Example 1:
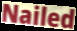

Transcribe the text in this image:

Nailed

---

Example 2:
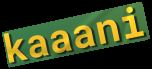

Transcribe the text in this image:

kaaani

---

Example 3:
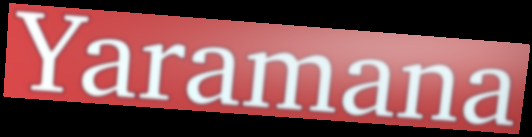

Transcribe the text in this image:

Yaramana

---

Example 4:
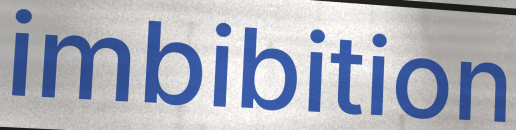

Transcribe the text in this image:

imbibition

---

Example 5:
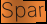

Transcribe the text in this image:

Spar